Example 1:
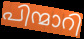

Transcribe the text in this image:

പിന്മാറി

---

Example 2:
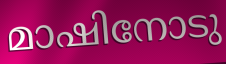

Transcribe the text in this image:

മാഷിനോടു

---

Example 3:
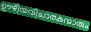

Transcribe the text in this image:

ഊഴിയവിചാരകന്മാരും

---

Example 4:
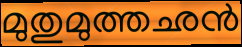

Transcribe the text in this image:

മുതുമുത്തഛൻ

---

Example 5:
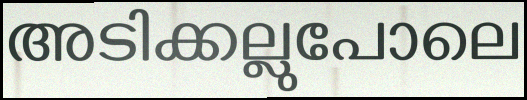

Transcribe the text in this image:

അടിക്കല്ലുപോലെ